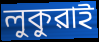
লুকুৱাই